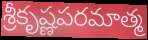
శ్రీకృష్ణపరమాత్మ